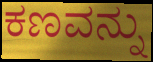
ಕಣವನ್ನು